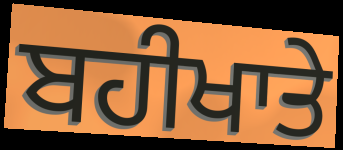
ਬਹੀਖਾਤੇ